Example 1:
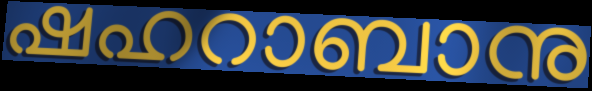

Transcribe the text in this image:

ഷഹറാബാനു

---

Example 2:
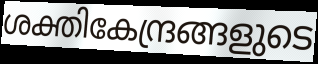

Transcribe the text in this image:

ശക്തികേന്ദ്രങ്ങളുടെ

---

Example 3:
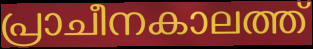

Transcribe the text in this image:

പ്രാചീനകാലത്ത്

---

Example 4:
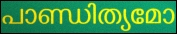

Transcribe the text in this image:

പാണ്ഡിത്യമോ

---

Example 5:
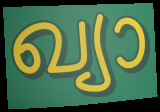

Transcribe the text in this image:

ഖ്യാ